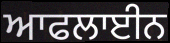
ਆਫਲਾਈਨ